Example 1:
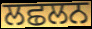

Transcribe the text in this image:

ਲਛਲਨ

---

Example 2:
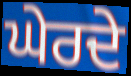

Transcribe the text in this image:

ਘੇਰਦੇ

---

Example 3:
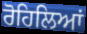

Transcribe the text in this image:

ਰੋਹਿਲਿਆਂ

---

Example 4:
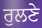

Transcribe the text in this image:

ਰੁਲਣੇ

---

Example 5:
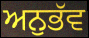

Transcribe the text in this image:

ਅਨੁਭੱਵ